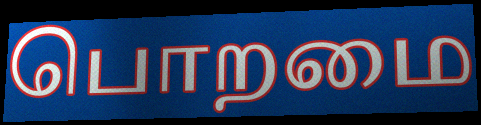
பொறமை